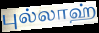
புல்லாஹ்